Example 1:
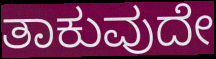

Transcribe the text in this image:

ತಾಕುವುದೇ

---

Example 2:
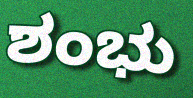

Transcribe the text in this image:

ಶಂಭು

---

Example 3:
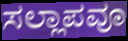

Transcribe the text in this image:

ಸಲ್ಲಾಪವೂ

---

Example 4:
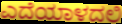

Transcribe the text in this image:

ಎದೆಯಾಳದಲಿ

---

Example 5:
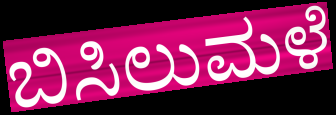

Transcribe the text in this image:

ಬಿಸಿಲುಮಳೆ